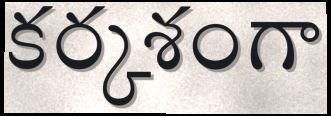
కర్కశంగా